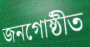
জনগোষ্ঠীত